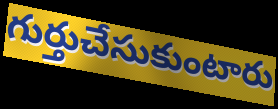
గుర్తుచేసుకుంటారు